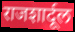
राजशार्दूल